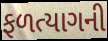
ફળત્યાગની